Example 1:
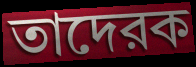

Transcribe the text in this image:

তাদেরক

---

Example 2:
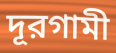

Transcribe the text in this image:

দূরগামী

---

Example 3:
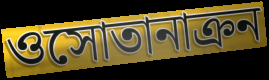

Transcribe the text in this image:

ওসোতানাক্রন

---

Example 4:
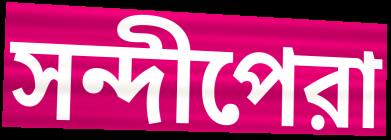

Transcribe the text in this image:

সন্দীপেরা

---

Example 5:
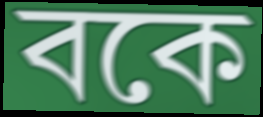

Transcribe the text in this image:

বকে